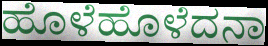
ಹೊಳೆಹೊಳೆದನಾ